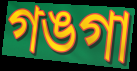
গঙগা